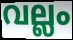
വല്ലം